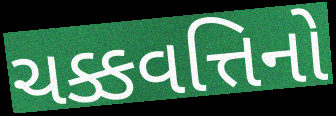
ચક્કવત્તિનો